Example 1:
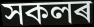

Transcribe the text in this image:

সকলৰ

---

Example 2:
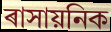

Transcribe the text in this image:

ৰাসায়নিক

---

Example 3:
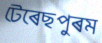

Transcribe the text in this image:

টেৰেছপুৰম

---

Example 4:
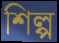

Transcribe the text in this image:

শিল্প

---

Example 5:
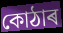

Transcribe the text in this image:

কোঠাৰ